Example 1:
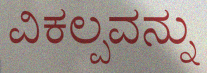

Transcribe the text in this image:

ವಿಕಲ್ಪವನ್ನು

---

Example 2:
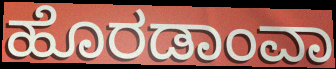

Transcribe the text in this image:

ಹೊರಡಾಂವಾ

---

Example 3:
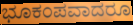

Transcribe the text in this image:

ಭೂಕಂಪವಾದರೂ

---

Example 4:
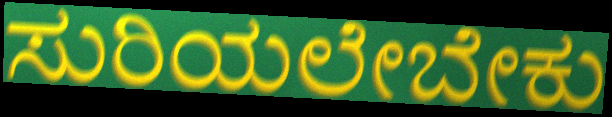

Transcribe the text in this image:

ಸುರಿಯಲೇಬೇಕು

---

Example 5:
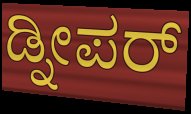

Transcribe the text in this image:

ಡ್ನೀಪರ್